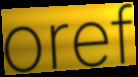
oref